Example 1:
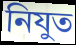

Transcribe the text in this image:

নিযুত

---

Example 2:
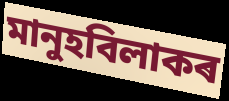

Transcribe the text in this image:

মানুহবিলাকৰ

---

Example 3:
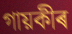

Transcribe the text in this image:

গায়কীৰ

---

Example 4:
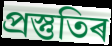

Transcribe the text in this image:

প্ৰস্তুতিৰ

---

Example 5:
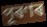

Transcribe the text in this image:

পূৰণৰ